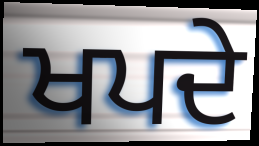
ਖਪਦੇ